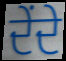
ਦੇਂਦੇ